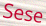
Sese